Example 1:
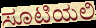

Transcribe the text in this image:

ಸೂಟಿಯಲಿ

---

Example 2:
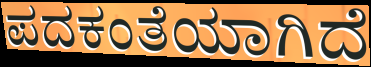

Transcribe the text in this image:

ಪದಕಂತೆಯಾಗಿದೆ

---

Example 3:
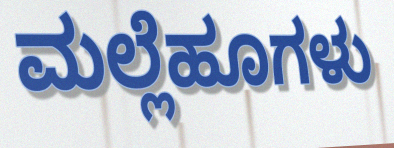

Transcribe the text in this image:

ಮಲ್ಲೆಹೂಗಳು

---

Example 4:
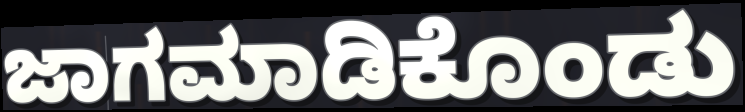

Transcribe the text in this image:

ಜಾಗಮಾಡಿಕೊಂಡು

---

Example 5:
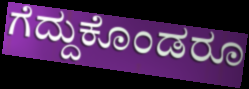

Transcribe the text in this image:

ಗೆದ್ದುಕೊಂಡರೂ